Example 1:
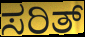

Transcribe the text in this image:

ಸರಿತ್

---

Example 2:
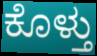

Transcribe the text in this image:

ಕೊಳ್ತು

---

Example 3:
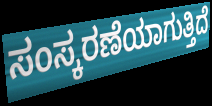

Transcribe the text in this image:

ಸಂಸ್ಕರಣೆಯಾಗುತ್ತಿದೆ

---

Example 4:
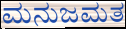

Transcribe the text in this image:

ಮನುಜಮತ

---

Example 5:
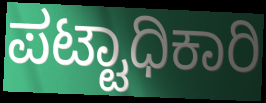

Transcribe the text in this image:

ಪಟ್ಟಾಧಿಕಾರಿ